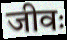
जीवः